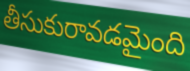
తీసుకురావడమైంది